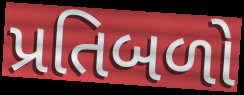
પ્રતિબળો